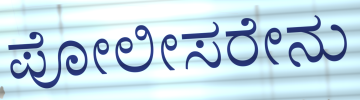
ಪೋಲೀಸರೇನು